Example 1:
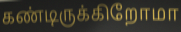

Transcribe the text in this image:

கண்டிருக்கிறோமா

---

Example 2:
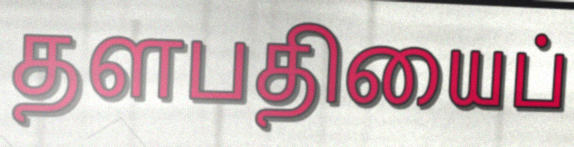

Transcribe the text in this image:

தளபதியைப்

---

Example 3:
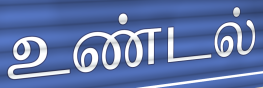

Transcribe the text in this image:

உண்டல்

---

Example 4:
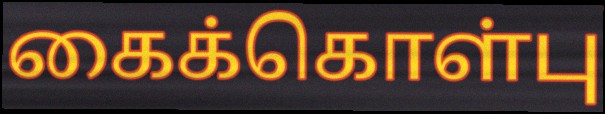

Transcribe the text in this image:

கைக்கொள்பு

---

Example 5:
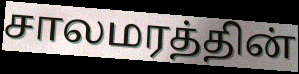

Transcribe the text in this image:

சாலமரத்தின்